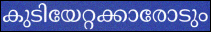
കുടിയേറ്റക്കാരോടും